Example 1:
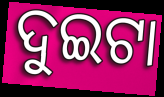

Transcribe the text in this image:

ଦୁଇଟା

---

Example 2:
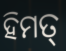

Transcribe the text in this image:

ହିମତ୍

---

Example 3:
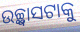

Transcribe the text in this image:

ଉଚ୍ଛ୍ୱାସଟାକୁ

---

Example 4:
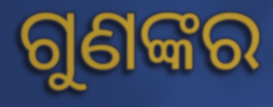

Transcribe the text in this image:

ଗୁଣଙ୍କର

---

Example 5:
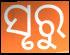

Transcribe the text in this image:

ସୃରୁ